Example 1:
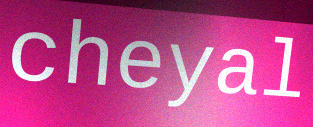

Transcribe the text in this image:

cheyal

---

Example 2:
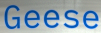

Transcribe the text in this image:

Geese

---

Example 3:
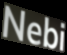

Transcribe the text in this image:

Nebi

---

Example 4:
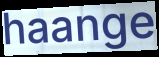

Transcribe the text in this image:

haange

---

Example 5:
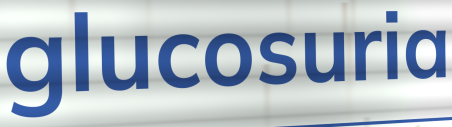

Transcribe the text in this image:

glucosuria